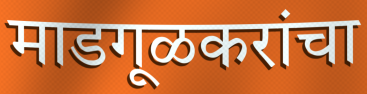
माडगूळकरांचा